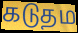
கடுதம